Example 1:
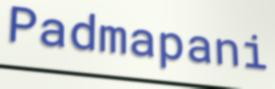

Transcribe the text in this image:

Padmapani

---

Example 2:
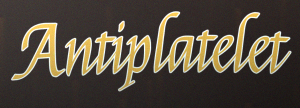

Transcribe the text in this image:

Antiplatelet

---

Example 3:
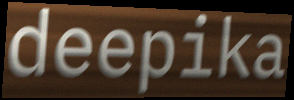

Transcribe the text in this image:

deepika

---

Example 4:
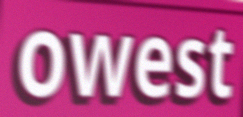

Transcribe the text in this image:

owest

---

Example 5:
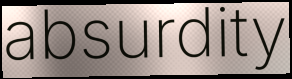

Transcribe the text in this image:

absurdity